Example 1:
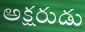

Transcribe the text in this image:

అక్షరుడు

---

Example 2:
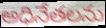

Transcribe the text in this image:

అధినేతలను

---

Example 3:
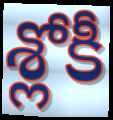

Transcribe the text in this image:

శ్లోకీ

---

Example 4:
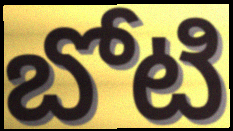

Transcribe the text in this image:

బోటి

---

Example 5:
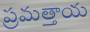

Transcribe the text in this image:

ప్రమత్తాయ